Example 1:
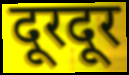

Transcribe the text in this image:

दूरदूर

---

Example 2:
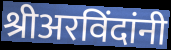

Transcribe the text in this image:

श्रीअरविंदांनी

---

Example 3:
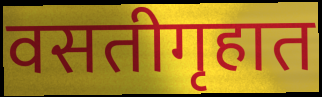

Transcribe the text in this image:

वसतीगृहात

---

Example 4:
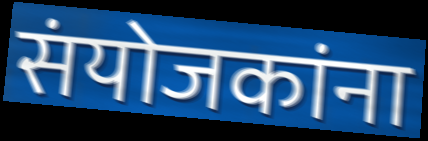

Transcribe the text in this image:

संयोजकांना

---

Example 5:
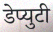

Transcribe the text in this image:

डेप्युटी